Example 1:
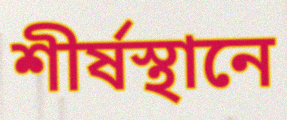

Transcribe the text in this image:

শীর্ষস্থানে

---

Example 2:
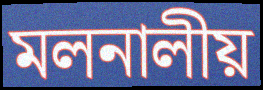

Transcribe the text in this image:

মলনালীয়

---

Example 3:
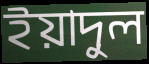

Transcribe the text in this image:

ইয়াদুল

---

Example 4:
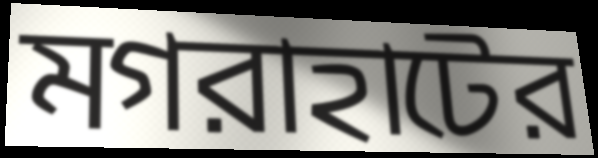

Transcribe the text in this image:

মগরাহাটের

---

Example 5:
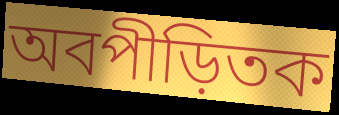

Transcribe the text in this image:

অবপীড়িতক